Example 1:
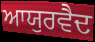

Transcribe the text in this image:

ਆਯੁਰਵੈਦ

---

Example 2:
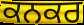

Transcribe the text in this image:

ਕਨਕਰ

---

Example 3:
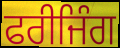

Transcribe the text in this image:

ਫਰੀਜਿੰਗ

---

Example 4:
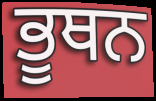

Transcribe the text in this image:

ਭੂਥਨ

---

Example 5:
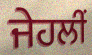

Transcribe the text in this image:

ਜੇਹਲੀਂ